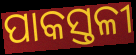
ପାକସ୍ତଳୀ